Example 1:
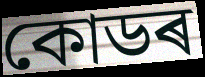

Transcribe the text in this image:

কোডৰ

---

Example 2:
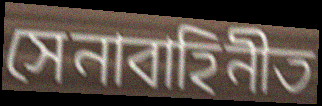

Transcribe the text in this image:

সেনাবাহিনীত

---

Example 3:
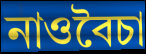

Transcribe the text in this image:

নাওবৈচা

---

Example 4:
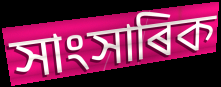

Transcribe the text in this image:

সাংসাৰিক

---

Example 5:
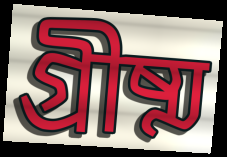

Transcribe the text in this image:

গ্ৰীষ্ম